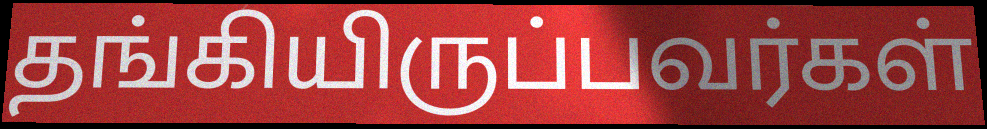
தங்கியிருப்பவர்கள்